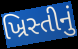
ખ્રિસ્તીનું